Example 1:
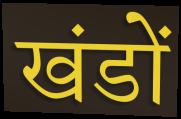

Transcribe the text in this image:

खंडों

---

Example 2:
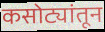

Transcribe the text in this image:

कसोट्यांतून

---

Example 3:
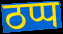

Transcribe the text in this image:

ठप्प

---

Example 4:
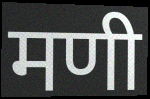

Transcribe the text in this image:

मणी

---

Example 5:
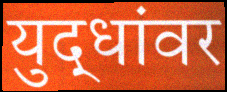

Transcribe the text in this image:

युद्धांवर